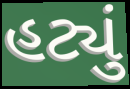
હટ્યું